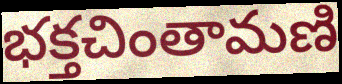
భక్తచింతామణి